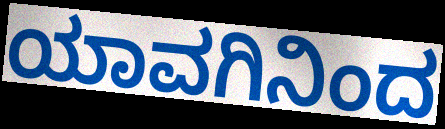
ಯಾವಗಿನಿಂದ